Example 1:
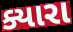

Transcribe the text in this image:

ક્યારા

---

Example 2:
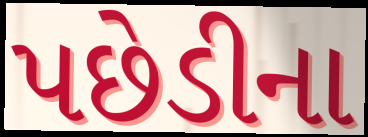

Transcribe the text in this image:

પછેડીના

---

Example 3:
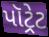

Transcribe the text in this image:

પૉટ્રેટ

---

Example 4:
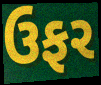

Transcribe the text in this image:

ઉફર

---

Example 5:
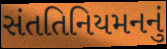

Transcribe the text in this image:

સંતતિનિયમનનું